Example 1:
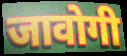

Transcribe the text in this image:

जावोगी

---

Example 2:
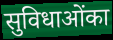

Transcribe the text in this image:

सुविधाओंका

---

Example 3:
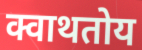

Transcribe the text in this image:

क्वाथतोय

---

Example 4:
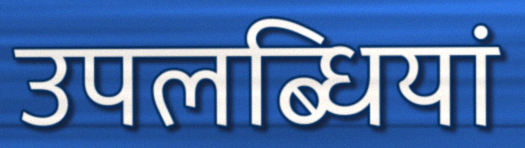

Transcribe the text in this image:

उपलब्धियां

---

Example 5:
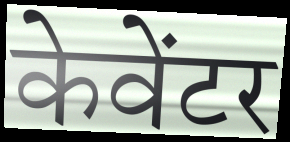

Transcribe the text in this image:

केवेंटर